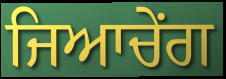
ਜਿਆਚੇਂਗ